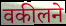
वकीलने